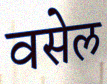
वसेल